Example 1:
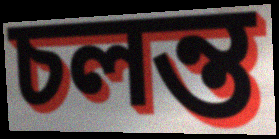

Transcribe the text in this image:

চলন্ত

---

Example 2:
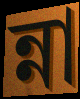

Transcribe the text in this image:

ন্না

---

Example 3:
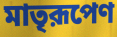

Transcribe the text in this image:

মাতৃরূপেণ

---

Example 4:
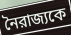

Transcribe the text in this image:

নৈরাজ্যকে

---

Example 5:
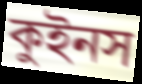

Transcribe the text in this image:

কুইনস